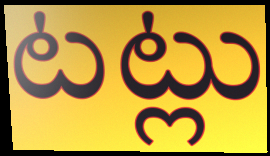
టట్లు